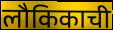
लौकिकाची